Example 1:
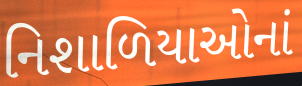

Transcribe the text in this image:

નિશાળિયાઓનાં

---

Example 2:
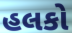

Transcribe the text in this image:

હલકો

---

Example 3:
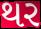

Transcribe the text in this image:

થર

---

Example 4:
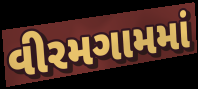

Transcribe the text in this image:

વીરમગામમાં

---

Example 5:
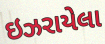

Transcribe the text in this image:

ઇઝરાયેલા